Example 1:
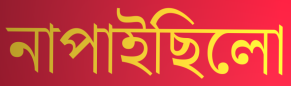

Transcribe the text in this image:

নাপাইছিলো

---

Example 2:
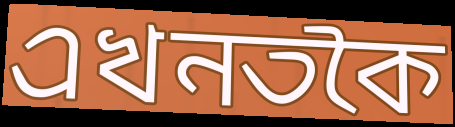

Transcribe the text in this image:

এখনতকৈ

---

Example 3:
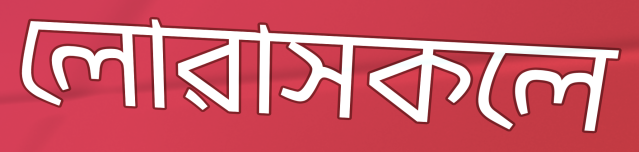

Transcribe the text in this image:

লোৱাসকলে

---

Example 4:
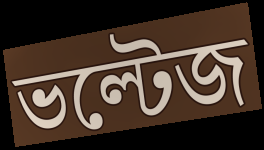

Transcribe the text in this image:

ভল্টেজ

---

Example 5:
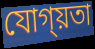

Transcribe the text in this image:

যোগ্য়তা